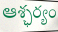
ఆశ్ఛర్యం